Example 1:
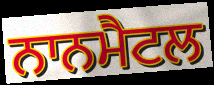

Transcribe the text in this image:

ਨਾਨਮੈਟਲ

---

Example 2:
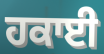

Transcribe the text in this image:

ਹਕਾਈ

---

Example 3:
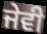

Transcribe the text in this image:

ਜੇਵੀ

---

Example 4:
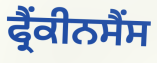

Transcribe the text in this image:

ਫ੍ਰੈਂਕੀਨਸੈਂਸ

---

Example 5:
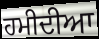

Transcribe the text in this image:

ਹਮੀਦੀਆ